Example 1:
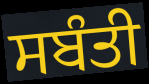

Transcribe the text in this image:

ਸਬੰਤੀ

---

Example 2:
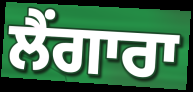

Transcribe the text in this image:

ਲੈਂਗਾਰਾ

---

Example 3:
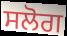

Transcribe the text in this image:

ਸਲੋਗ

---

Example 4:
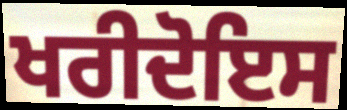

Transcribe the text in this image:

ਖਰੀਦੋਇਸ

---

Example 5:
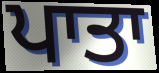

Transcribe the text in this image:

ਪਾਤਾ